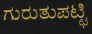
ಗುರುತುಪಟ್ಟಿ